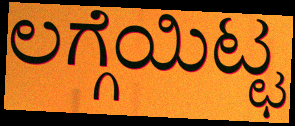
ಲಗ್ಗೆಯಿಟ್ಟ